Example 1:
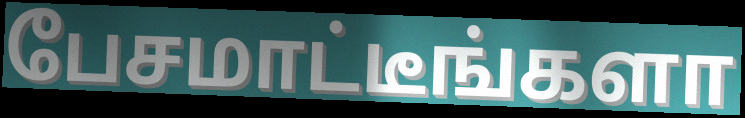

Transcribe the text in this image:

பேசமாட்டீங்களா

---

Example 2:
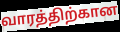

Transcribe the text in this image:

வாரத்திற்கான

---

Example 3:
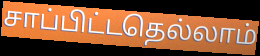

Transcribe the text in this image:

சாப்பிட்டதெல்லாம்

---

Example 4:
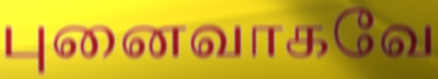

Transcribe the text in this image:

புனைவாகவே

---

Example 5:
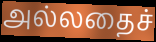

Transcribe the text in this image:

அல்லதைச்